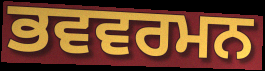
ਭਵਵਰਮਨ